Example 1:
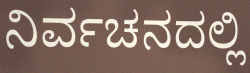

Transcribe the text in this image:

ನಿರ್ವಚನದಲ್ಲಿ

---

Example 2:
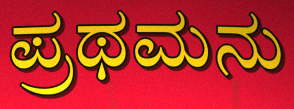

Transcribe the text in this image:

ಪ್ರಥಮನು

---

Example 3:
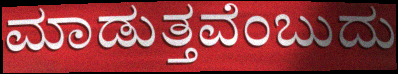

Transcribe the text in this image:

ಮಾಡುತ್ತವೆಂಬುದು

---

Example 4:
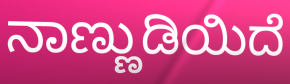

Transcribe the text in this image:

ನಾಣ್ಣುಡಿಯಿದೆ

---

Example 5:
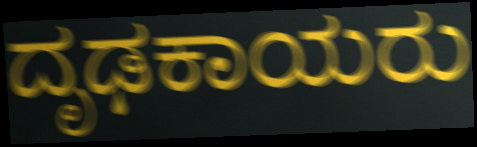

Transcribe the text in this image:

ದೃಢಕಾಯರು